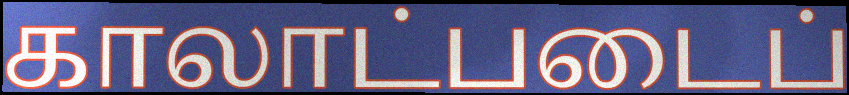
காலாட்படைப்